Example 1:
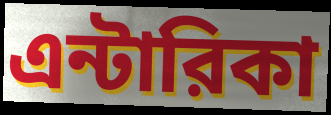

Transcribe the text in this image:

এন্টারিকা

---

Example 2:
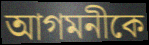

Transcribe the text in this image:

আগমনীকে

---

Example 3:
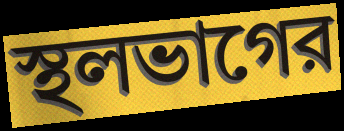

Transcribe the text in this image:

স্থলভাগের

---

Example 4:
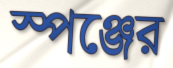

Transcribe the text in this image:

স্পঞ্জের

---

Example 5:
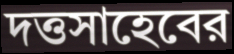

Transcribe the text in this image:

দত্তসাহেবের